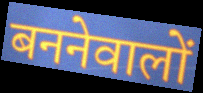
बननेवालों